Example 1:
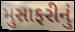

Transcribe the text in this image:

મુસાફરીનું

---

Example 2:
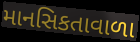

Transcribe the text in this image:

માનસિકતાવાળા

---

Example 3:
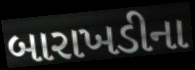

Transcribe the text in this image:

બારાખડીના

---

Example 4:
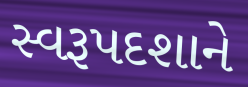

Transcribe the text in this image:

સ્વરૂપદશાને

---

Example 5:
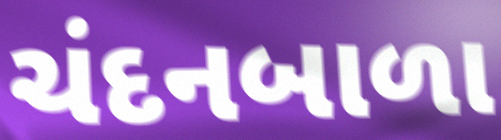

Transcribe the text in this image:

ચંદનબાળા